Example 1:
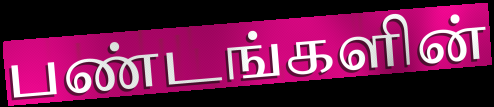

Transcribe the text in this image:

பண்டங்களின்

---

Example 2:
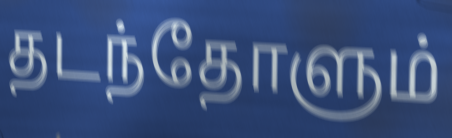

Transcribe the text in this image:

தடந்தோளும்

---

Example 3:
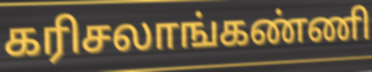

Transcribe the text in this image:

கரிசலாங்கண்ணி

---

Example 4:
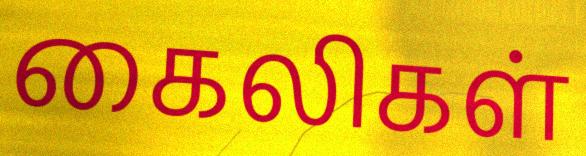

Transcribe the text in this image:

கைலிகள்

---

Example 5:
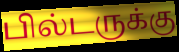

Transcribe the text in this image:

பில்டருக்கு